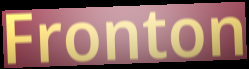
Fronton